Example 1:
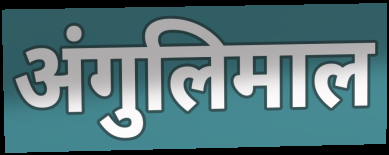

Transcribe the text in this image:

अंगुलिमाल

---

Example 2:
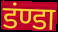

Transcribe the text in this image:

डंण्डा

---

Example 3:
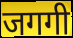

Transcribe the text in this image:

जगगी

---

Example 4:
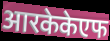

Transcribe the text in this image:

आरकेकेएफ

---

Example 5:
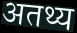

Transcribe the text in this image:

अतथ्य